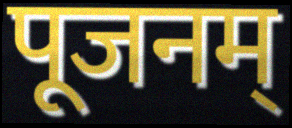
पूजनम्